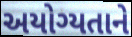
અયોગ્યતાને